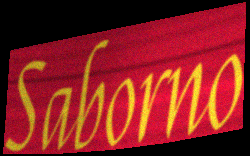
Saborno